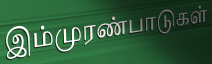
இம்முரண்பாடுகள்